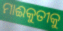
ମାଈକୁତୀକୁ